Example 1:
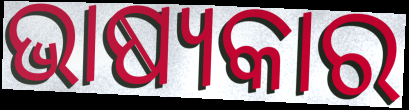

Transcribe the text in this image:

ଭାଷ୍ୟକାର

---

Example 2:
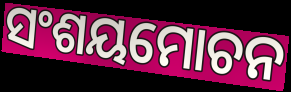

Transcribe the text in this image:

ସଂଶୟମୋଚନ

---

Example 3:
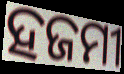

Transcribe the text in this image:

ହଜମୀ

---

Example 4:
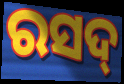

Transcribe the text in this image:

ରସଦ୍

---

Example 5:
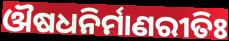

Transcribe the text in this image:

ଔଷଧନିର୍ମାଣରୀତିଃ